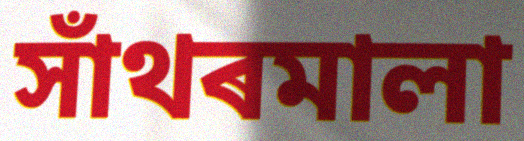
সাঁথৰমালা